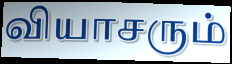
வியாசரும்